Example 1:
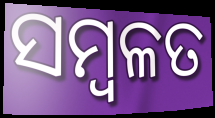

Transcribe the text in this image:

ସମ୍ବଳତ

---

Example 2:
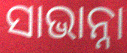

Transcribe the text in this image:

ସାଭାନ୍ନା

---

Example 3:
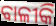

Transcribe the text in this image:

ବାଳୀକି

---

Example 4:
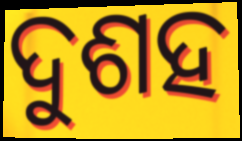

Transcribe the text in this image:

ଦୁଶହ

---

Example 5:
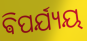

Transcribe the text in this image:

ଵିପର୍ଯ୍ୟୟ